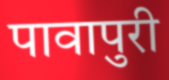
पावापुरी